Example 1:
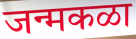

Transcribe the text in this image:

जन्मकळा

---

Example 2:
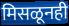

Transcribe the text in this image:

मिसळूनही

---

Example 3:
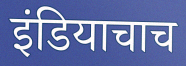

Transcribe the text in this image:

इंडियाचाच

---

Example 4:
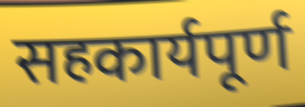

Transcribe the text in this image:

सहकार्यपूर्ण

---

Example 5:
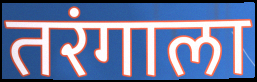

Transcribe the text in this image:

तरंगाला